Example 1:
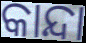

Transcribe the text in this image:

କାନ୍ଦା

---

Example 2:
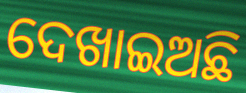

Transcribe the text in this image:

ଦେଖାଇଅଛି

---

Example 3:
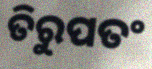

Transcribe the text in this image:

ତିରୁପତଂ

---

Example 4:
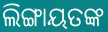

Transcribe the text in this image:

ଲିଙ୍ଗାୟତଙ୍କ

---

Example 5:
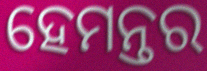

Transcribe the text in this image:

ହେମନ୍ତର